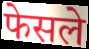
फेसले